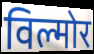
विल्मोर